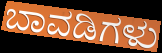
ಬಾವಡಿಗಳು